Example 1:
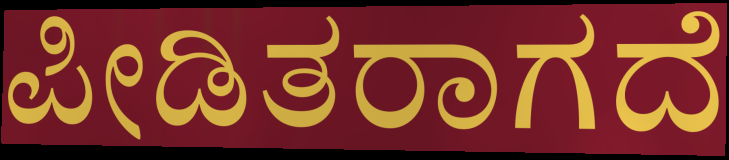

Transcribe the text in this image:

ಪೀಡಿತರಾಗದೆ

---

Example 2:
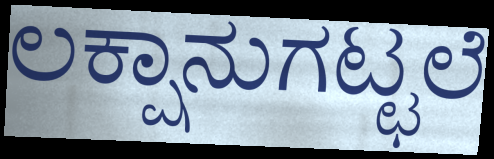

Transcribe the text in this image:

ಲಕ್ಷಾನುಗಟ್ಟಲೆ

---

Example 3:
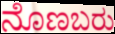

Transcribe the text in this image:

ನೊಣಬರು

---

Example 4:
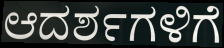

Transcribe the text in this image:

ಆದರ್ಶಗಳಿಗೆ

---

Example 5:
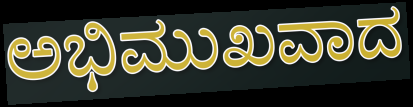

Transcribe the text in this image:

ಅಭಿಮುಖವಾದ